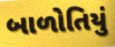
બાળોતિયું